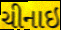
ચીનાઇ